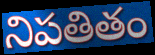
నిపతితం